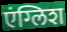
एंग्लिश